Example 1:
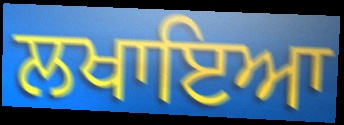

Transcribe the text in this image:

ਲਖਾਇਆ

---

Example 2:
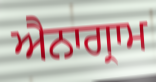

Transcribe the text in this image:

ਐਨਾਗ੍ਰਾਮ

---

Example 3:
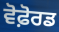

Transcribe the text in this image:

ਵੋਫ਼ੋਰਡ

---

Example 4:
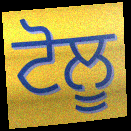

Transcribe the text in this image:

ਟੋਲੂ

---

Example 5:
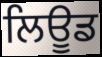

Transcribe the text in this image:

ਲਿਊਡ